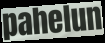
pahelun